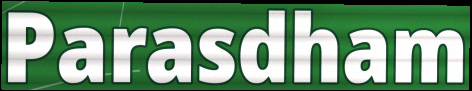
Parasdham